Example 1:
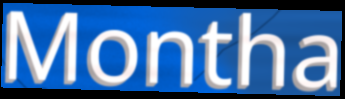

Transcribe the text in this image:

Montha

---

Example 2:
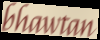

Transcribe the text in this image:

bhawtan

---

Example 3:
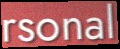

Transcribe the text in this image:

rsonal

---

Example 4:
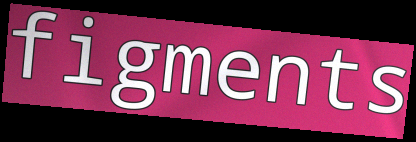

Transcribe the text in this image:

figments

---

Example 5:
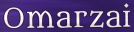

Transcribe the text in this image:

Omarzai